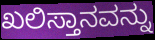
ಖಲಿಸ್ತಾನವನ್ನು